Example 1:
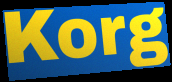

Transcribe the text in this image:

Korg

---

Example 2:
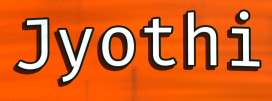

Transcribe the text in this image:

Jyothi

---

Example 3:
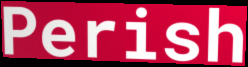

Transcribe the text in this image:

Perish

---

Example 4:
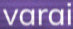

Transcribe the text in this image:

varai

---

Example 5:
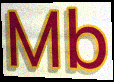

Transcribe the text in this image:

Mb